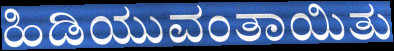
ಹಿಡಿಯುವಂತಾಯಿತು